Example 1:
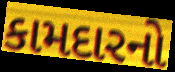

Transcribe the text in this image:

કામદારનો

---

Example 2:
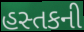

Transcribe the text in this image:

હસ્તકની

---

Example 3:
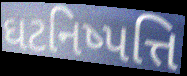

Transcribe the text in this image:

ઘટનિષ્પત્તિ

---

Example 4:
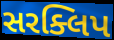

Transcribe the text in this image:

સરક્લિપ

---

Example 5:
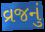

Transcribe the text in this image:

વ્રજનું